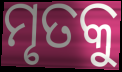
ମୃତକୁ